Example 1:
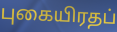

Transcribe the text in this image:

புகையிரதப்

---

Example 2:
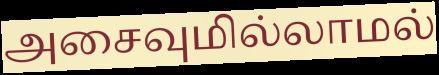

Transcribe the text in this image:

அசைவுமில்லாமல்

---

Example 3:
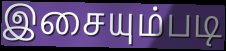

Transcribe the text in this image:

இசையும்படி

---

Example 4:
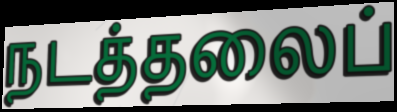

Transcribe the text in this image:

நடத்தலைப்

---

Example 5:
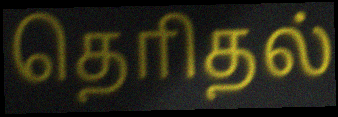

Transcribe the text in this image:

தெரிதல்